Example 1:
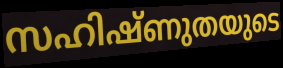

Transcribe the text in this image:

സഹിഷ്ണുതയുടെ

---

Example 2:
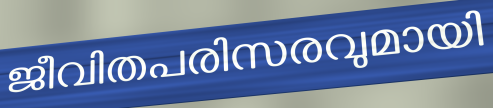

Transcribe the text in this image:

ജീവിതപരിസരവുമായി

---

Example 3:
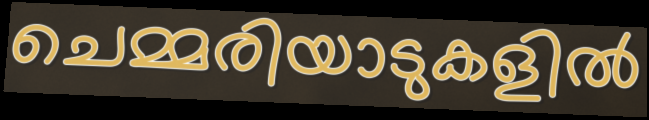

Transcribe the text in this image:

ചെമ്മരിയാടുകളിൽ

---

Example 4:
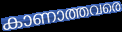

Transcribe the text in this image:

കാണാത്തവരെ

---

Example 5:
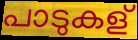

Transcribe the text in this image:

പാടുകള്